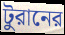
টুরানের